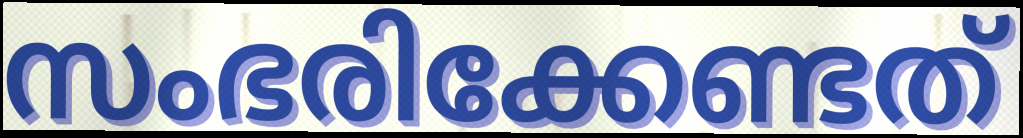
സംഭരിക്കേണ്ടത്